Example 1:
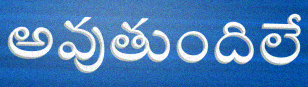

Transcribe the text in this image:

అవుతుందిలే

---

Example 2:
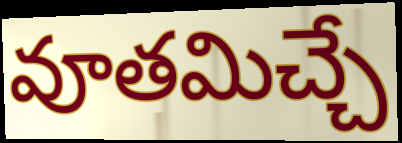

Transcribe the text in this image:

వూతమిచ్చే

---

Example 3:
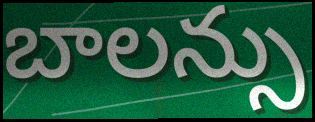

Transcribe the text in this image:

బాలన్సు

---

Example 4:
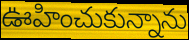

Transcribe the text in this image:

ఊహించుకున్నాను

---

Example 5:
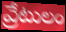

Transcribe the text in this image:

వ్రేటులం